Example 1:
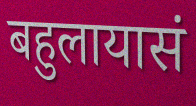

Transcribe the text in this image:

बहुलायासं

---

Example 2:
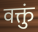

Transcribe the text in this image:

वक्तुं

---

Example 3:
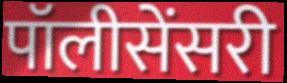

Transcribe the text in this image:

पॉलीसेंसरी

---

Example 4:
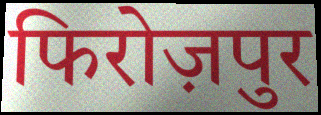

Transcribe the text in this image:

फिरोज़पुर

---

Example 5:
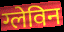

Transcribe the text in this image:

ग्लेविन